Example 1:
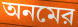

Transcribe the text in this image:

অনমের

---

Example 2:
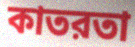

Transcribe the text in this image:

কাতরতা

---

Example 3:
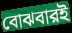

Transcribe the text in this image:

বোঝবারই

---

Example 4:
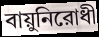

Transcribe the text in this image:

বায়ুনিরোধী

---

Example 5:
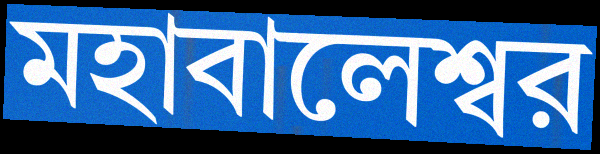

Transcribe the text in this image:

মহাবালেশ্বর